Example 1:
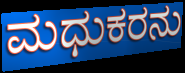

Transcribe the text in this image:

ಮಧುಕರನು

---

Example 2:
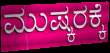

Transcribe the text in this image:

ಮುಷ್ಕರಕ್ಕೆ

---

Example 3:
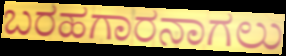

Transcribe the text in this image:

ಬರಹಗಾರನಾಗಲು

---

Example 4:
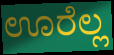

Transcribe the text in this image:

ಊರೆಲ್ಲ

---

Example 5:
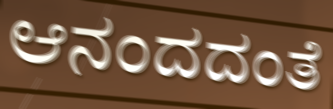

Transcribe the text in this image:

ಆನಂದದಂತೆ